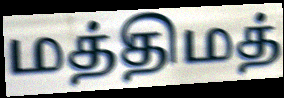
மத்திமத்